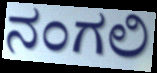
ನಂಗಲಿ